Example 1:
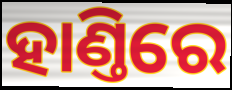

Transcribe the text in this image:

ହାଣ୍ତିରେ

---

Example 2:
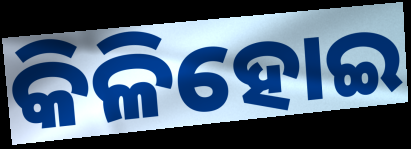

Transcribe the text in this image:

କିଳିହୋଇ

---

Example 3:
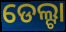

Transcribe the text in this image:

ଡେଲ୍ଟା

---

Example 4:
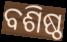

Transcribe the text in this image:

ବଶିଷ୍ଠ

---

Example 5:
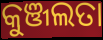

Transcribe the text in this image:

କୁଞ୍ଜଲତା